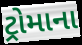
ટ્રોમાના